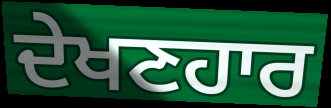
ਦੇਖਣਹਾਰ